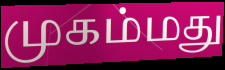
முகம்மது